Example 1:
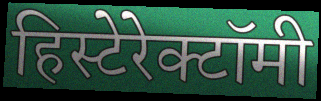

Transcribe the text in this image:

हिस्टेरेक्टॉमी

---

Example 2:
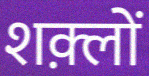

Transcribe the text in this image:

शक़्लों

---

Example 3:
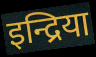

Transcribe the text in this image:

इन्द्रिया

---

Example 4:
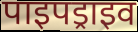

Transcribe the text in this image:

पाइपड्राइव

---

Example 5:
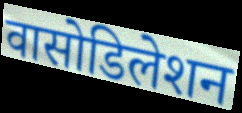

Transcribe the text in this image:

वासोडिलेशन